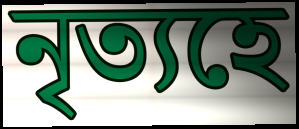
নৃত্যহে